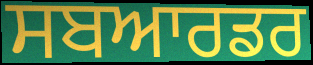
ਸਬਆਰਡਰ